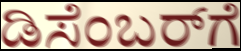
ಡಿಸೆಂಬರ್‌ಗೆ